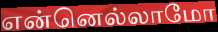
என்னெல்லாமோ